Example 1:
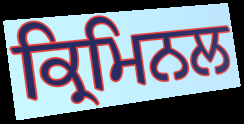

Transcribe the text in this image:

ਕ੍ਰਿਮਿਨਲ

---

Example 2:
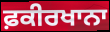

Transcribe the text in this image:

ਫ਼ਕੀਰਖਾਨਾ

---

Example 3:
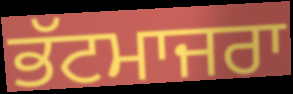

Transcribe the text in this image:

ਭੱਟਮਾਜਰਾ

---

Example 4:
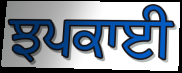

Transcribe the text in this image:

ਝਪਕਾਈ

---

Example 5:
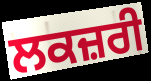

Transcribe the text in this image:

ਲਕਜ਼ਰੀ